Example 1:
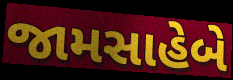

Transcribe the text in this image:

જામસાહેબે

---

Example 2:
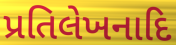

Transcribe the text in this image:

પ્રતિલેખનાદિ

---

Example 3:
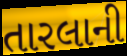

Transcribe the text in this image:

તારલાની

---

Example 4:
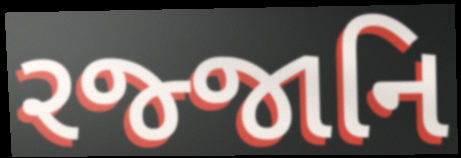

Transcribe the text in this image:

રજ્જાનિ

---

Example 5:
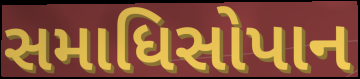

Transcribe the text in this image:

સમાધિસોપાન